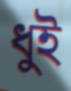
ধুই